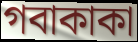
গবাকাকা